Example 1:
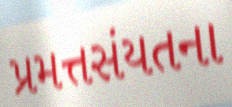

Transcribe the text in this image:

પ્રમત્તસંયતના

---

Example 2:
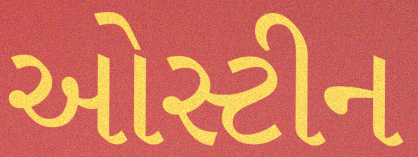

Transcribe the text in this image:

ઓસ્ટીન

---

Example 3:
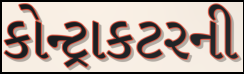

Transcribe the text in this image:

કોન્ટ્રાકટરની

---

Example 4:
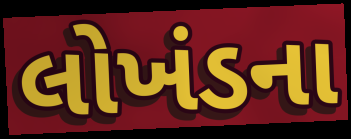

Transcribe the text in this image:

લોખંડના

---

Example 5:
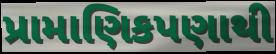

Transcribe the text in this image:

પ્રામાણિકપણાથી